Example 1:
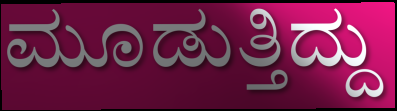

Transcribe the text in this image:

ಮೂಡುತ್ತಿದ್ದು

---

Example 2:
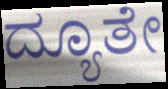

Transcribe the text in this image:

ದ್ಯೂತೇ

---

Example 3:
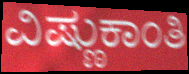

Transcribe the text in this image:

ವಿಷ್ಣುಕಾಂತಿ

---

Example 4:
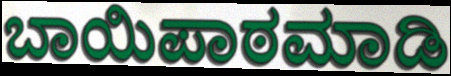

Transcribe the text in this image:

ಬಾಯಿಪಾಠಮಾಡಿ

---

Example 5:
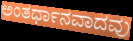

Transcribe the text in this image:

ಅಂತರ್ಧಾನವಾದವು